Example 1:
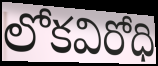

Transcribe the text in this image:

లోకవిరోధి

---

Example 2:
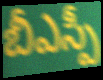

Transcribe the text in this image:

బీఎస్పీ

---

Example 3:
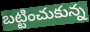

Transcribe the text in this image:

బట్టించుకున్న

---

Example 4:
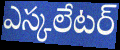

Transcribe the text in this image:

ఎస్కలేటర్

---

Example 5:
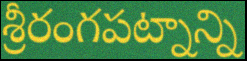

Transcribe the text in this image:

శ్రీరంగపట్నాన్ని